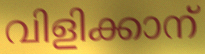
വിളിക്കാന്